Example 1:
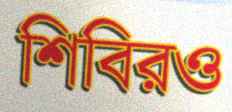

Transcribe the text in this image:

শিবিরও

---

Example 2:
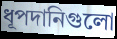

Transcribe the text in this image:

ধূপদানিগুলো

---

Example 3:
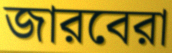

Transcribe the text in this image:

জারবেরা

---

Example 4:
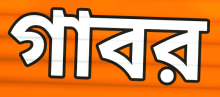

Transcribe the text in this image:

গাবর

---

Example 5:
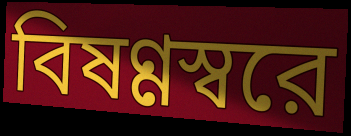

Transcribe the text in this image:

বিষণ্ণস্বরে